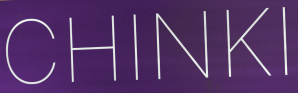
CHINKI